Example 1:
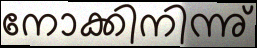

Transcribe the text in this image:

നോക്കിനിന്നു്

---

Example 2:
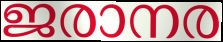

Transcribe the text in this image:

ജരാനര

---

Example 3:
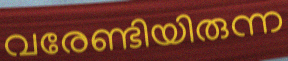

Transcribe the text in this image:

വരേണ്ടിയിരുന്ന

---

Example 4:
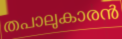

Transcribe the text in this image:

തപാലുകാരൻ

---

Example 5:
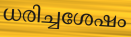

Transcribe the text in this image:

ധരിച്ചശേഷം